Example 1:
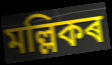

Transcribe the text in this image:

মল্লিকৰ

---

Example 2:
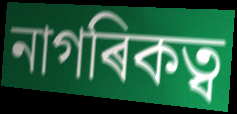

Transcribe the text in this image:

নাগৰিকত্ব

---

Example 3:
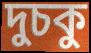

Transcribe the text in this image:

দুচকু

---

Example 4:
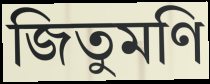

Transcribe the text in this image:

জিতুমণি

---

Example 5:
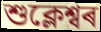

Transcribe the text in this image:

শুক্লেশ্বৰ